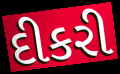
દીકરી